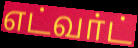
எட்வர்ட்